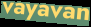
vayavan